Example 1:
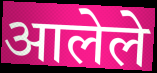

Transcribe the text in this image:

आलेले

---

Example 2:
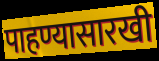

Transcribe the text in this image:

पाहण्यासारखी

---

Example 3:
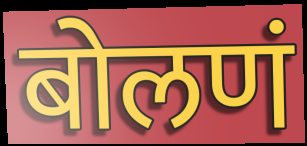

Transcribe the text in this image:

बोलणं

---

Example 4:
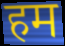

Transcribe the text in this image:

हम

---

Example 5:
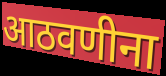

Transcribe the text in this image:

आठवणीना